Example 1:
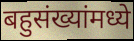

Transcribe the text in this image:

बहुसंख्यांमध्ये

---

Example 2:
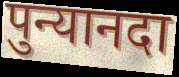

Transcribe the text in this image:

पुन्यानदा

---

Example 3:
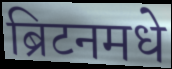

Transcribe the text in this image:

ब्रिटनमधे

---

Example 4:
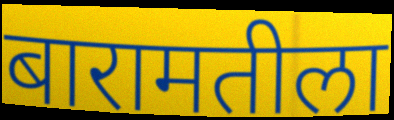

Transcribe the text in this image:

बारामतीला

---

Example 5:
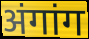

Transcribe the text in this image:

अंगांग